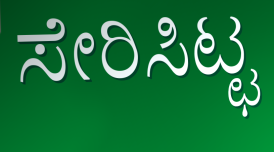
ಸೇರಿಸಿಟ್ಟ